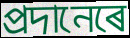
প্ৰদানেৰে